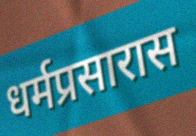
धर्मप्रसारास